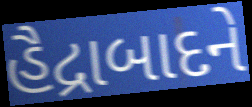
હૈદ્રાબાદને